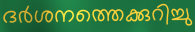
ദർശനത്തെക്കുറിച്ചു